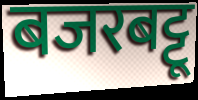
बजरबट्टू